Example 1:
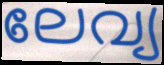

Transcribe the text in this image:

ലേവ്യ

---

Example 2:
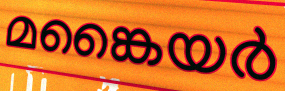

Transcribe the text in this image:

മങ്കൈയർ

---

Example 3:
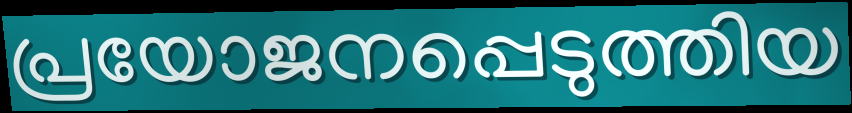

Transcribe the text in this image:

പ്രയോജനപ്പെടുത്തിയ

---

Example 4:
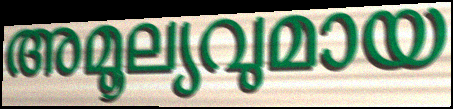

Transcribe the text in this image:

അമൂല്യവുമായ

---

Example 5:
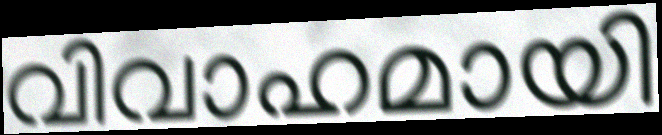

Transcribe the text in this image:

വിവാഹമായി